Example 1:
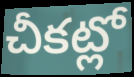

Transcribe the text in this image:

చీకట్లో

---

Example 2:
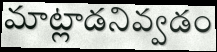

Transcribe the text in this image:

మాట్లాడనివ్వడం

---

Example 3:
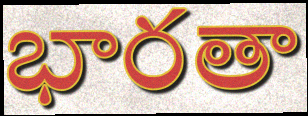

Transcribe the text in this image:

భారతా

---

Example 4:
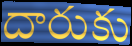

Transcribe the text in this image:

దారుకు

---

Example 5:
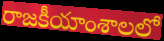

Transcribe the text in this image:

రాజకీయాంశాలలో